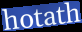
hotath